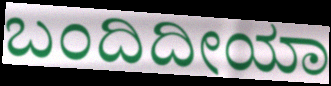
ಬಂದಿದೀಯಾ